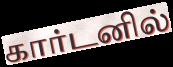
கார்டனில்